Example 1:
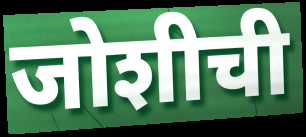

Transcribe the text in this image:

जोशीची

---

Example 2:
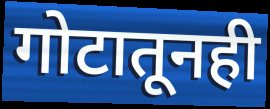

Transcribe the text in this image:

गोटातूनही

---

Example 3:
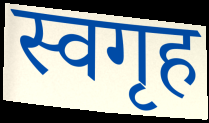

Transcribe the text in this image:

स्वगृह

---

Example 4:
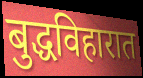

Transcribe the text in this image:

बुद्धविहारात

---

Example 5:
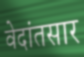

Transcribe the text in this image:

वेदांतसार